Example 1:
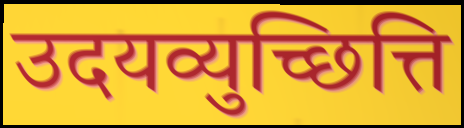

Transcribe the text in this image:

उदयव्युच्छित्ति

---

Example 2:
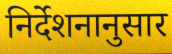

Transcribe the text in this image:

निर्देशनानुसार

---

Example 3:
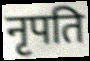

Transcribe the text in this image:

नृपति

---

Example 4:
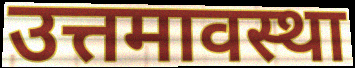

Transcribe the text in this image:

उत्तमावस्था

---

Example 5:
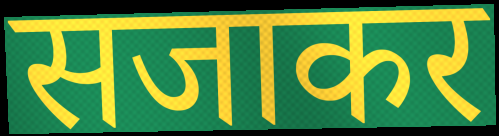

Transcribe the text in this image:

सजाकर